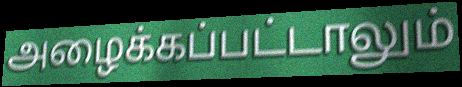
அழைக்கப்பட்டாலும்